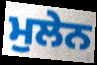
ਮੁਲੇਨ